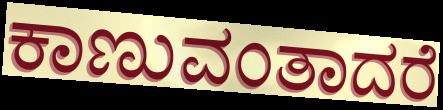
ಕಾಣುವಂತಾದರೆ